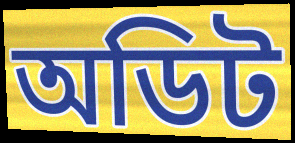
অডিট